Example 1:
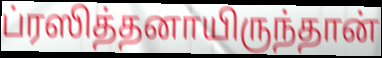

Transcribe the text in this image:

ப்ரஸித்தனாயிருந்தான்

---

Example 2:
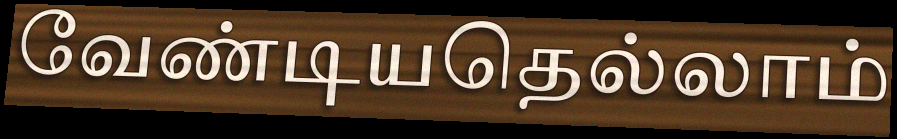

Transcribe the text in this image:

வேண்டியதெல்லாம்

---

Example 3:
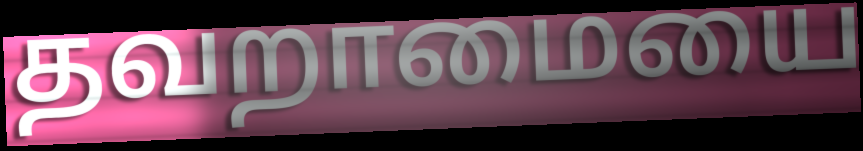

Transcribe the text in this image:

தவறாமையை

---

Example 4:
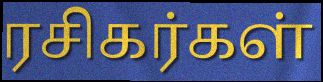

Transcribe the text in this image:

ரசிகர்கள்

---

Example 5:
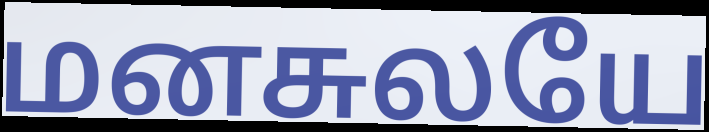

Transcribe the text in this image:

மனசுலயே